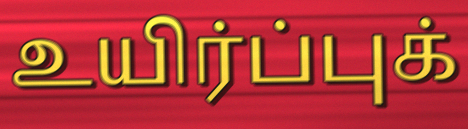
உயிர்ப்புக்